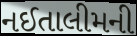
નઈતાલીમની